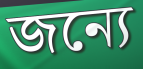
জন্যে